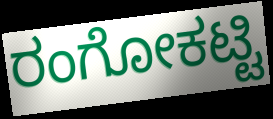
ರಂಗೋಕಟ್ಟಿ